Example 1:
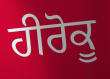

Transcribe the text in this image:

ਹੀਰੋਕੂ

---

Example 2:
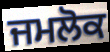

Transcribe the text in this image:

ਜਮਲੋਕ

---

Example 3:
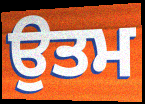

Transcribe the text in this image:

ਉਤਮ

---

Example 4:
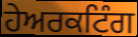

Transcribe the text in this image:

ਹੇਅਰਕਟਿੰਗ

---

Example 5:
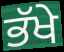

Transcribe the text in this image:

ਭੱਖੇ